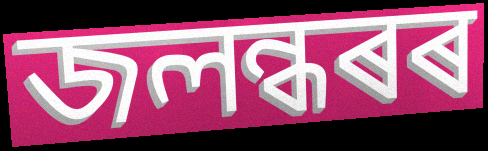
জলন্ধৰৰ